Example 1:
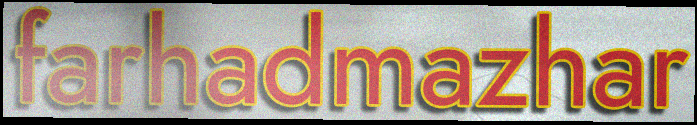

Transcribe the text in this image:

farhadmazhar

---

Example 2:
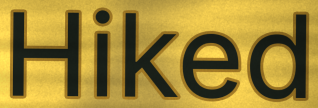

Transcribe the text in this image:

Hiked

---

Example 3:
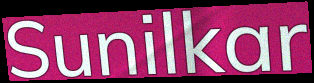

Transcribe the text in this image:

Sunilkar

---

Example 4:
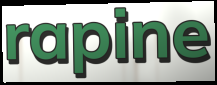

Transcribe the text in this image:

rapine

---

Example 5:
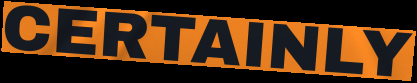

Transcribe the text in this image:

CERTAINLY